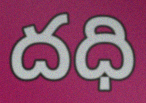
దధి